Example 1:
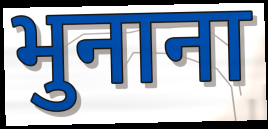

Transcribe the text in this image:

भुनाना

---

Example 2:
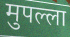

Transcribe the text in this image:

मुपल्ला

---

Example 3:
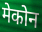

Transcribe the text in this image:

मेकोन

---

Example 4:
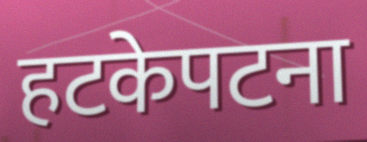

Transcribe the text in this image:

हटकेपटना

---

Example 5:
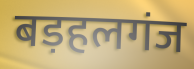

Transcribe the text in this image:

बड़हलगंज